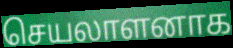
செயலாளனாக